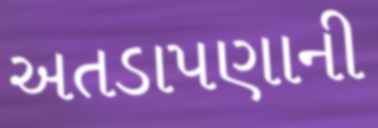
અતડાપણાની